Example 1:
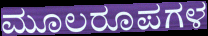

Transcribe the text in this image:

ಮೂಲರೂಪಗಳ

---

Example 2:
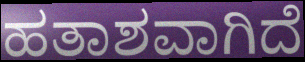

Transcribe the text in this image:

ಹತಾಶವಾಗಿದೆ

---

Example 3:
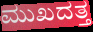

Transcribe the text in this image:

ಮುಖದತ್ತ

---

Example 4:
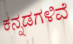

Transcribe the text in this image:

ಕನ್ನಡಗಳಿವೆ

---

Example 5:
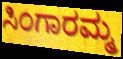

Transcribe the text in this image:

ಸಿಂಗಾರಮ್ಮ